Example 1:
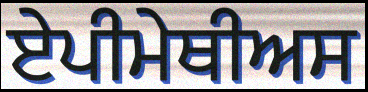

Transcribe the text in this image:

ਏਪੀਮੇਥੀਅਸ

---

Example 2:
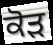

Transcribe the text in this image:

ਕੋੜ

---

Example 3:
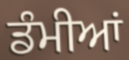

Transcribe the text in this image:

ਡੰਮੀਆਂ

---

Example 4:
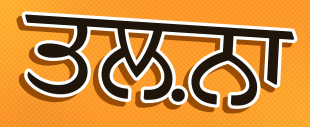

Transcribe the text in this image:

ਤਲ਼ਨਾ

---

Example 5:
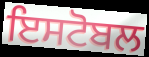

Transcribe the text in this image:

ਇਸਟੋਬਲ